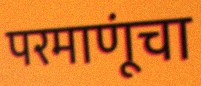
परमाणूंचा